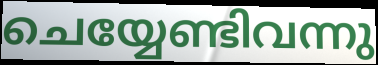
ചെയ്യേണ്ടിവന്നു